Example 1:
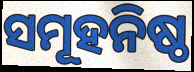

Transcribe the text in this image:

ସମୂହନିଷ୍ଠ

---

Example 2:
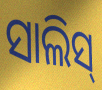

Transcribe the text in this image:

ସାଲିସ୍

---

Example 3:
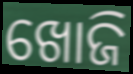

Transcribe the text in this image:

ଖୋଜି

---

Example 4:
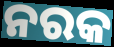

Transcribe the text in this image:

ନରକ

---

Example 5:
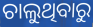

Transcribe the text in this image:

ଚାଲୁଥିବାରୁ